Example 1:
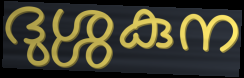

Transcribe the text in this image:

ദുശ്ശകുന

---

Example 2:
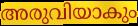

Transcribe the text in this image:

അരുവിയാകും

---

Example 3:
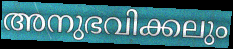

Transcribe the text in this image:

അനുഭവിക്കലും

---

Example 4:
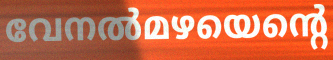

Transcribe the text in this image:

വേനൽമഴയെന്റെ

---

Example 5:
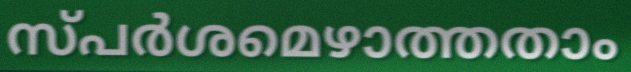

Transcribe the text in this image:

സ്പർശമെഴാത്തതാം